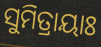
ସୁମିତ୍ରାୟାଃ